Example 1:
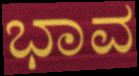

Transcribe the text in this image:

ಭಾವ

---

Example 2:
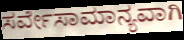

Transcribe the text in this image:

ಸರ್ವೇಸಾಮಾನ್ಯವಾಗಿ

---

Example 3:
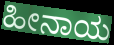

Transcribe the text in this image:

ಹೀನಾಯ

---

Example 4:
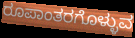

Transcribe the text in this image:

ರೂಪಾಂತರಗೊಳ್ಳುವ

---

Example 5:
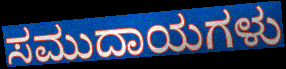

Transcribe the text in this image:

ಸಮುದಾಯಗಳು